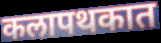
कलापथकात